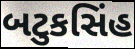
બટુકસિંહ